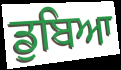
ਡੁਬਿਆ